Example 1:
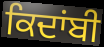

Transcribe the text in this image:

ਕਿਦਾਂਬੀ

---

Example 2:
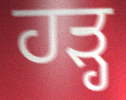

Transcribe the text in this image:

ਹੜ੍ਹ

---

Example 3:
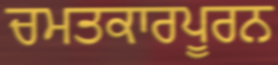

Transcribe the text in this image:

ਚਮਤਕਾਰਪੂਰਨ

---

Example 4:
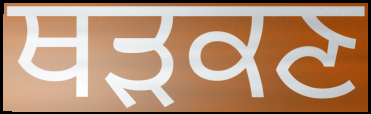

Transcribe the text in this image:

ਥੜਕਣ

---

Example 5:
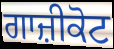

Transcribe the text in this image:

ਗਾਜ਼ੀਕੋਟ